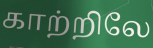
காற்றிலே